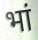
भां